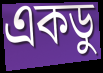
একডু